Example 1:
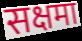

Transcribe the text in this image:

सक्षमा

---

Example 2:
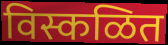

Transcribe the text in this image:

विस्कळित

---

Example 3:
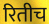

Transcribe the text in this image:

रितीच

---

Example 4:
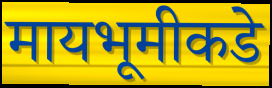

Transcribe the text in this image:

मायभूमीकडे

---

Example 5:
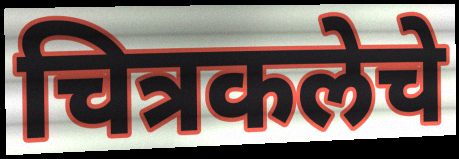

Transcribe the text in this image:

चित्रकलेचे